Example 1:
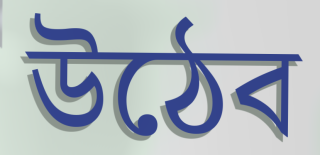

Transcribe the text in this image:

উঠেব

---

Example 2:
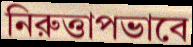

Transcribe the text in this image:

নিরুত্তাপভাবে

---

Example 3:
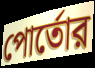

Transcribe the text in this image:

পোর্তোর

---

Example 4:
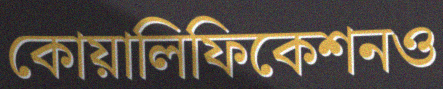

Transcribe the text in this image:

কোয়ালিফিকেশনও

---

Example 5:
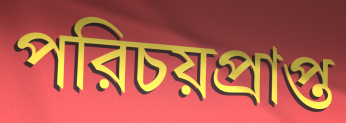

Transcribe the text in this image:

পরিচয়প্রাপ্ত